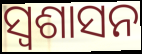
ସ୍ବଶାସନ